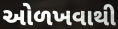
ઓળખવાથી